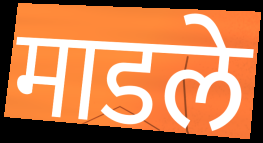
माडले